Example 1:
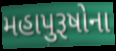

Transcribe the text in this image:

મહાપુરૂષોના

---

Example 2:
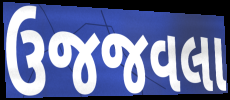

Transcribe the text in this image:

ઉજજવલા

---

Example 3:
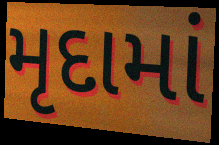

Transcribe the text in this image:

મૃદામાં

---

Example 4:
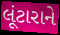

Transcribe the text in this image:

લૂંટારાને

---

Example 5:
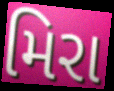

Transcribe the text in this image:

મિરા